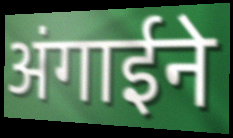
अंगाईने